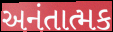
અનંતાત્મક